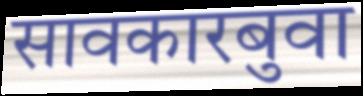
सावकारबुवा